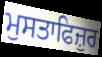
ਮੁਸਤਾਫਿਜ਼ੁਰ